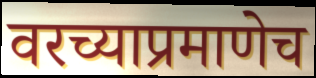
वरच्याप्रमाणेच